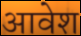
आवेश